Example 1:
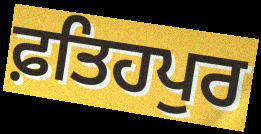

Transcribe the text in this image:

ਫ਼ਤਿਹਪੁਰ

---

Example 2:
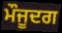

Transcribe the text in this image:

ਮੌਜੂਦਗ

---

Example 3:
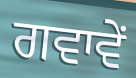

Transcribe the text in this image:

ਗਵਾਵੇਂ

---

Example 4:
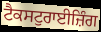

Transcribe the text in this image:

ਟੈਕਸਟੁਰਾਈਜ਼ਿੰਗ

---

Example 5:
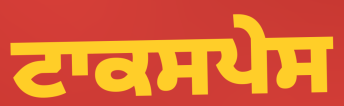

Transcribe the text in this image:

ਟਾਕਸਪੇਸ